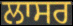
ਲਾਸਰ